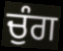
ਚੁੰਗ